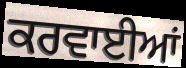
ਕਰਵਾਈਆਂ